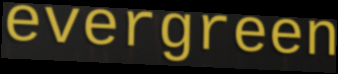
evergreen